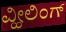
ವ್ಹೀಲಿಂಗ್